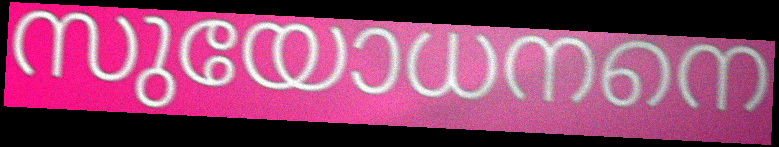
സുയോധനനെ